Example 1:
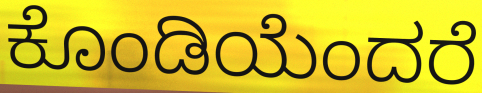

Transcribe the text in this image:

ಕೊಂಡಿಯೆಂದರೆ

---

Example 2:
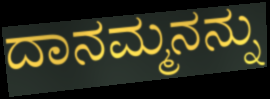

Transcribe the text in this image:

ದಾನಮ್ಮನನ್ನು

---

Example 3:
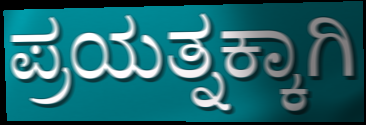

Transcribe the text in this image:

ಪ್ರಯತ್ನಕ್ಕಾಗಿ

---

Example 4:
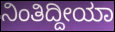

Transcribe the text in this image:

ನಿಂತಿದ್ದೀಯಾ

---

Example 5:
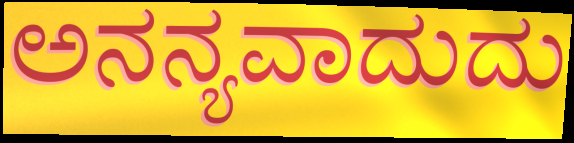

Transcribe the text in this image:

ಅನನ್ಯವಾದುದು